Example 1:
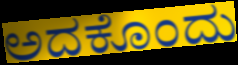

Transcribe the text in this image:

ಅದಕೊಂದು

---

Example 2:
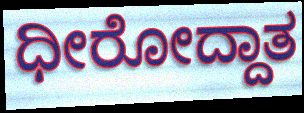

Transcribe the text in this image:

ಧೀರೋದ್ದಾತ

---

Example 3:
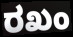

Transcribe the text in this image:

ರಖಂ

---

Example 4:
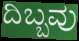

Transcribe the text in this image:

ದಿಬ್ಬವು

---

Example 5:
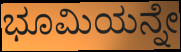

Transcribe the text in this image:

ಭೂಮಿಯನ್ನೇ